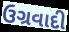
ઉગ્રવાદી